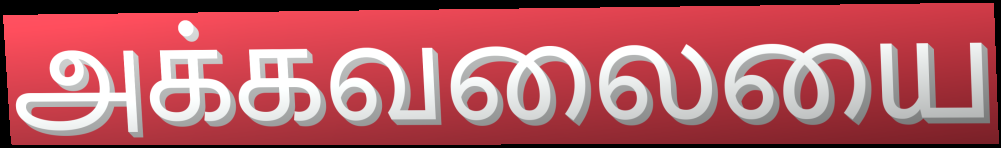
அக்கவலையை